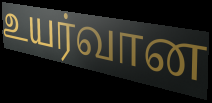
உயர்வான